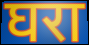
घरा